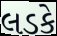
લડકે